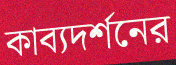
কাব্যদর্শনের